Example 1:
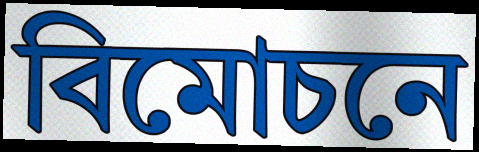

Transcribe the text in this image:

বিমোচনে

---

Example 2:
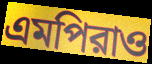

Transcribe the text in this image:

এমপিরাও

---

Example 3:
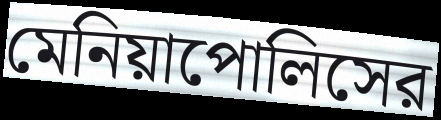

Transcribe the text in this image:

মেনিয়াপোলিসের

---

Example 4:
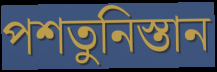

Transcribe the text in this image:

পশতুনিস্তান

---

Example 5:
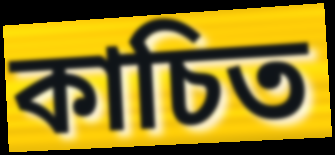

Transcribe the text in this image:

কাচিত